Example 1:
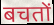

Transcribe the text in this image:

बचतों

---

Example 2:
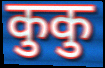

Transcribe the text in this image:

कुकु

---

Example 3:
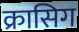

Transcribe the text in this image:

क्रासिग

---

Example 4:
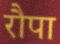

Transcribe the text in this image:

रौपा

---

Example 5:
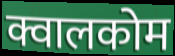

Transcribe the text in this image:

क्वालकोम